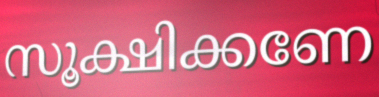
സൂക്ഷിക്കണേ